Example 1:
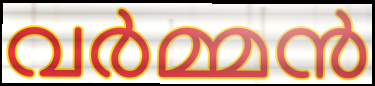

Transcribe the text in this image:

വർമ്മൻ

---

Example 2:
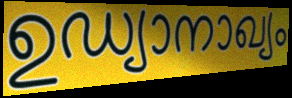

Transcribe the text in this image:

ഉഡ്യാനാഖ്യം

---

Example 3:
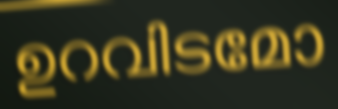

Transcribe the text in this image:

ഉറവിടമോ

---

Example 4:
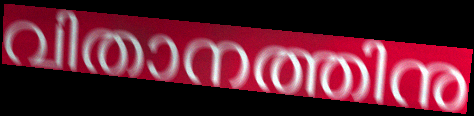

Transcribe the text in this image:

വിതാനത്തിനു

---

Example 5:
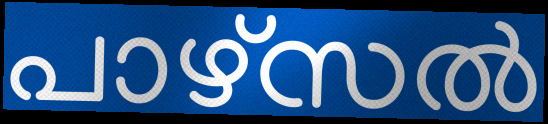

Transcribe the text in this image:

പാഴ്സൽ